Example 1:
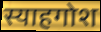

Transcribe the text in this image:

स्याहगोश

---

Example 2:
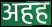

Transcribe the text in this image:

अहह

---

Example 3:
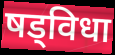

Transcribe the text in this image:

षड्विधा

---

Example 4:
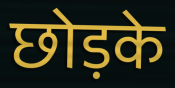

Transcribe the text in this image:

छोड़के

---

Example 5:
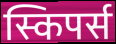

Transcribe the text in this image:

स्किपर्स